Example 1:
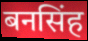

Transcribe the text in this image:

बनसिंह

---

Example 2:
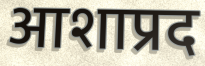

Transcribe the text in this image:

आशाप्रद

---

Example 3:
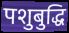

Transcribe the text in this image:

पशुबुद्धि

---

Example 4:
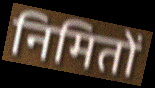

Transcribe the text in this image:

निमितों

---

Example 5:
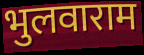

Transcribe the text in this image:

भुलवाराम